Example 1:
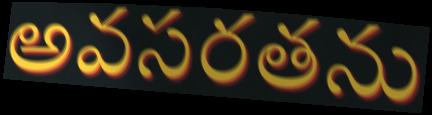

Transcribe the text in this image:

అవసరతను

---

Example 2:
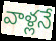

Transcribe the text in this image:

వాళ్లనే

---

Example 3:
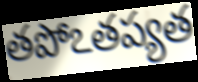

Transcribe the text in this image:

తపోఽతప్యత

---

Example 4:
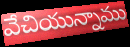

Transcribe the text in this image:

వేచియున్నాము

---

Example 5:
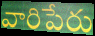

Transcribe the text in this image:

వారిపేరు